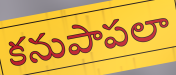
కనుపాపలా